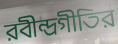
রবীন্দ্রগীতির